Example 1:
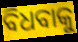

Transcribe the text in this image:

ବିଧବାକୁ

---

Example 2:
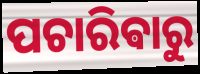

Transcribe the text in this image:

ପଚାରିଵାରୁ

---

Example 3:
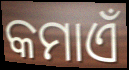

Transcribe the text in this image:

କମାଏଁ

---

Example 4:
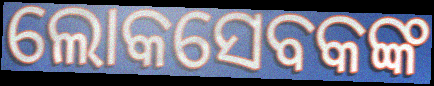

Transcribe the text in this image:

ଲୋକସେବକଙ୍କ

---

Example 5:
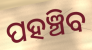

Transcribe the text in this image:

ପହଞ୍ଚିବ